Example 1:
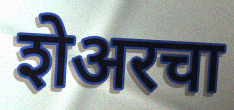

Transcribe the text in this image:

शेअरचा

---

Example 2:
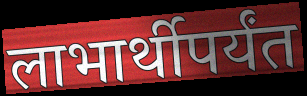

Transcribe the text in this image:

लाभार्थीपर्यंत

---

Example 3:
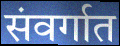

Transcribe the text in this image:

संवर्गात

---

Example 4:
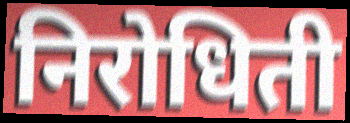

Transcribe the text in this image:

निरोधिती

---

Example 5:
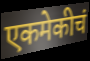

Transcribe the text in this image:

एकमेकीचं